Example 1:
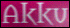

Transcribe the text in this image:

Akku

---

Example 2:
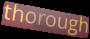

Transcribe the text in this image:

thorough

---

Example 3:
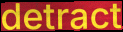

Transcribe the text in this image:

detract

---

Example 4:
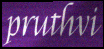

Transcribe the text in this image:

pruthvi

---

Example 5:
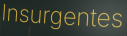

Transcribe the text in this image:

Insurgentes